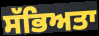
ਸੱਭਿਅਤਾ